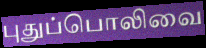
புதுப்பொலிவை